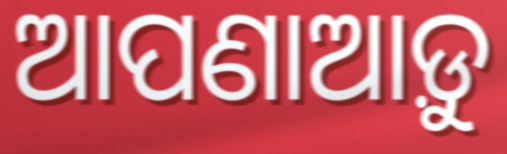
ଆପଣାଆଡ଼ୁ